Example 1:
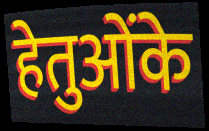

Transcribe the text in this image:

हेतुओंके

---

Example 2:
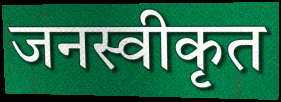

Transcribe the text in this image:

जनस्वीकृत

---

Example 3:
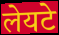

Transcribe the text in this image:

लेयटे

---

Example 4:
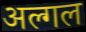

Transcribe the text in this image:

अल्गल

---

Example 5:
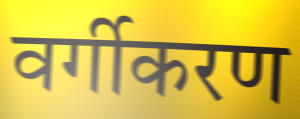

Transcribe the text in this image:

वर्गीकरण